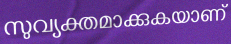
സുവ്യക്തമാക്കുകയാണ്